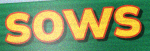
sows